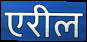
एरील